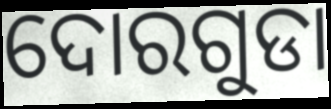
ଦୋରଗୁଡା